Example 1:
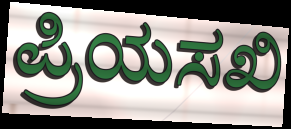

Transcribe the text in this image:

ಪ್ರಿಯಸಖಿ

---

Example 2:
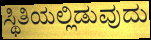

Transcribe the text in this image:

ಸ್ಥಿತಿಯಲ್ಲಿಡುವುದು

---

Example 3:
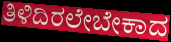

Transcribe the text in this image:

ತಿಳಿದಿರಲೇಬೇಕಾದ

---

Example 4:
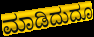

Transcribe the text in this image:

ಮಾಡಿದುದೂ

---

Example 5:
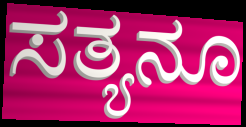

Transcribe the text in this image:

ಸತ್ಯನೂ